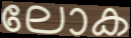
ലോക